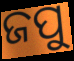
ଜପୁ